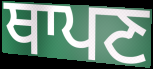
ਥਾਪਣ